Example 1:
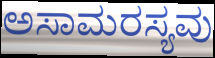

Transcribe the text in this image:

ಅಸಾಮರಸ್ಯವು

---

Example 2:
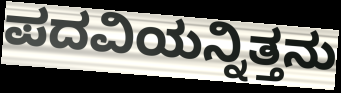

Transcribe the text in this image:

ಪದವಿಯನ್ನಿತ್ತನು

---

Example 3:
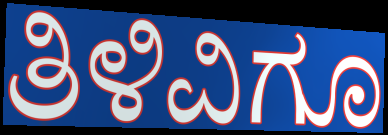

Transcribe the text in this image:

ತಿಳಿವಿಗೂ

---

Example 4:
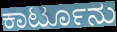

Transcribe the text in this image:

ಕಾರ್ಟೂನು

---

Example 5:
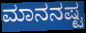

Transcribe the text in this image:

ಮಾನನಷ್ಟ